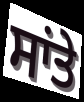
ਸਾਂਤੇ